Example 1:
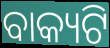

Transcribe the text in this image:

ବାକ୍ୟଟି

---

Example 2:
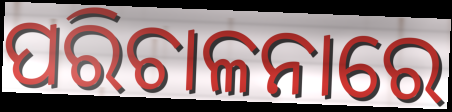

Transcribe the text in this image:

ପରିଚାଳନାରେ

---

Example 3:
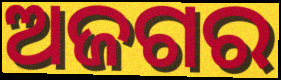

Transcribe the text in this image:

ଅଜଗର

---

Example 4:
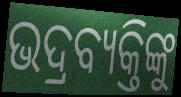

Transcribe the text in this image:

ଭଦ୍ରବ୍ୟକ୍ତିଙ୍କୁ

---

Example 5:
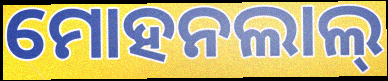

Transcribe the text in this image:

ମୋହନଲାଲ୍